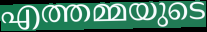
എത്തമ്മയുടെ